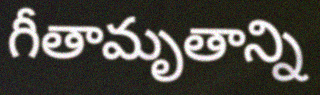
గీతామృతాన్ని